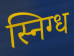
स्निग्ध